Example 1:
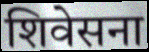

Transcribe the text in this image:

शिवेसना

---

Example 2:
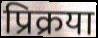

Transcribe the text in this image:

प्रिक्रया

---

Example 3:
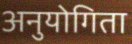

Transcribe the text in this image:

अनुयोगिता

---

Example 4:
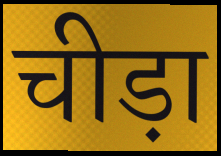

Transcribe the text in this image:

चीड़ा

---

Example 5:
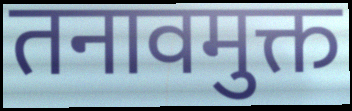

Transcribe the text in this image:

तनावमुक्त